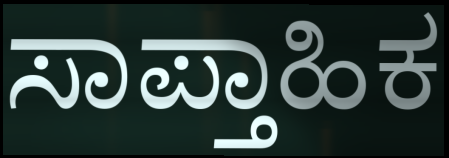
ಸಾಪ್ತಾಹಿಕ